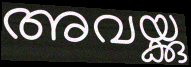
അവയ്ക്കു